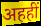
अहहीं